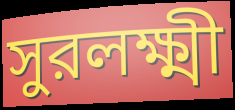
সুরলক্ষ্মী